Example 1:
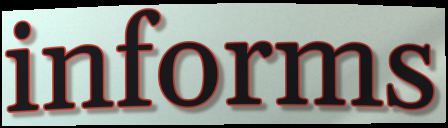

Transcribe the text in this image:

informs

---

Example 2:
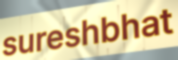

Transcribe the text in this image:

sureshbhat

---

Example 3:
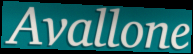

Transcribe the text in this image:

Avallone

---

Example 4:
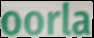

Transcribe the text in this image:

oorla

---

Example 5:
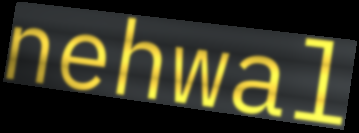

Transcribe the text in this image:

nehwal